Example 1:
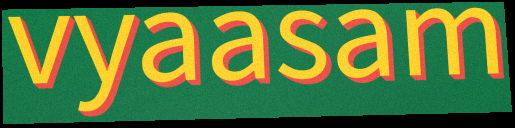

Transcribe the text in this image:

vyaasam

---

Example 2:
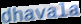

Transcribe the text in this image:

dhavala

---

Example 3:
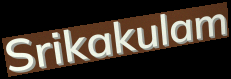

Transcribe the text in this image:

Srikakulam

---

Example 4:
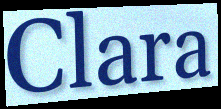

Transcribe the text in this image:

Clara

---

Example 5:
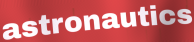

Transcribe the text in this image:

astronautics